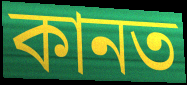
কানত